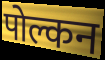
पोल्कन